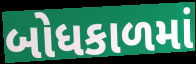
બોધકાળમાં